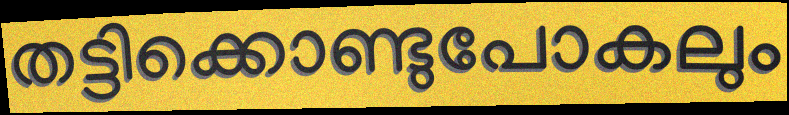
തട്ടിക്കൊണ്ടുപോകലും